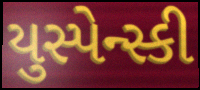
યુસ્પેન્સ્કી